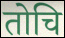
तोचि